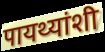
पायथ्यांशी